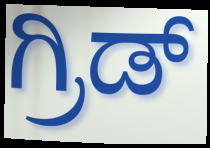
ಗ್ರಿಡ್